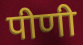
पीणी